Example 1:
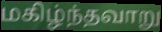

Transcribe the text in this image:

மகிழ்ந்தவாறு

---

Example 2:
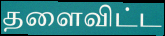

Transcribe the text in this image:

தளைவிட்ட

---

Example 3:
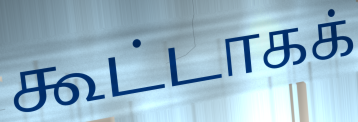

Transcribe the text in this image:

கூட்டாகக்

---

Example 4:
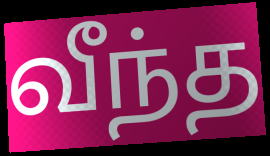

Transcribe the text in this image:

வீந்த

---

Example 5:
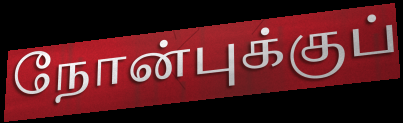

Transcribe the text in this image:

நோன்புக்குப்